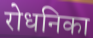
रोधनिका